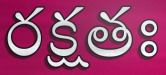
రక్షతః